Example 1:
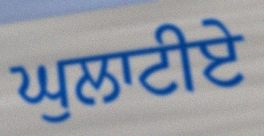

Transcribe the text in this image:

ਘੁਲਾਟੀਏ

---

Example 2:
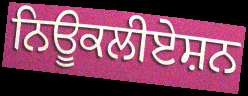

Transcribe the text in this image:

ਨਿਊਕਲੀਏਸ਼ਨ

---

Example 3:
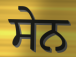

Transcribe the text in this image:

ਸੇਨ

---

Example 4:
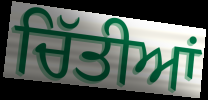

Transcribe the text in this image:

ਚਿੱਤੀਆਂ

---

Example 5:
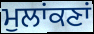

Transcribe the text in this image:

ਮੁਲਾਂਕਣਾਂ